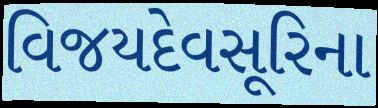
વિજયદેવસૂરિના